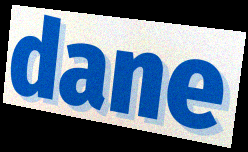
dane